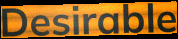
Desirable